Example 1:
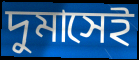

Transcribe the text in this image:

দুমাসেই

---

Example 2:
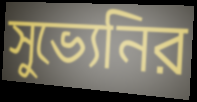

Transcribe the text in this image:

সুভ্যেনির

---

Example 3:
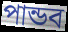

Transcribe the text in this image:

পান্ডব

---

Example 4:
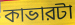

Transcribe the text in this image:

কাভারটা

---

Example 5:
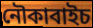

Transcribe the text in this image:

নৌকাবাইচ